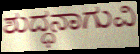
ಶುದ್ಧನಾಗುವಿ